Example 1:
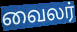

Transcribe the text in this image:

வைலர்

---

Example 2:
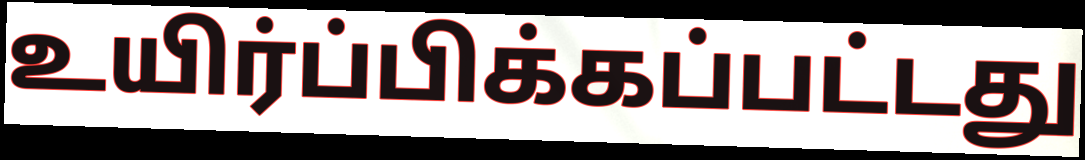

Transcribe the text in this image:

உயிர்ப்பிக்கப்பட்டது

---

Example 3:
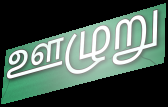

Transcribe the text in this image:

ஊழுறு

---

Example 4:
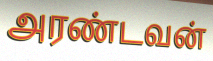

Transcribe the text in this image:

அரண்டவன்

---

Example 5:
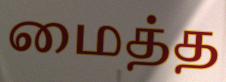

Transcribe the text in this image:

மைத்த